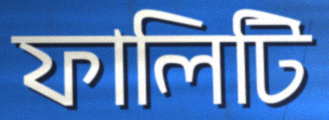
ফালিটি